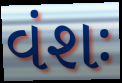
વંશઃ